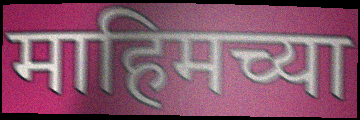
माहिमच्या